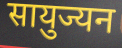
सायुज्यन